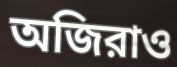
অজিরাও